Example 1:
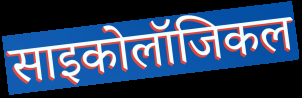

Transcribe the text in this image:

साइकोलॉजिकल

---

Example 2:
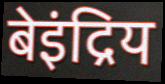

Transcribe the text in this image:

बेइंद्रिय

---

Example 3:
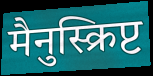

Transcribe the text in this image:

मैनुस्क्रिप्ट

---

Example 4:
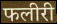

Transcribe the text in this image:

फलीरी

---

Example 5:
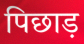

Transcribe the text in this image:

पिछाड़